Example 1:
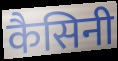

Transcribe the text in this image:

कैसिनी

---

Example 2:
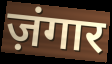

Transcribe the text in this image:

ज़ंगार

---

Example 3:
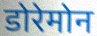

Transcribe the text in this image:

डोरेमोन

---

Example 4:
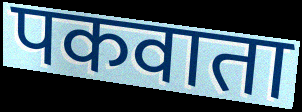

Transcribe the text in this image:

पकवाता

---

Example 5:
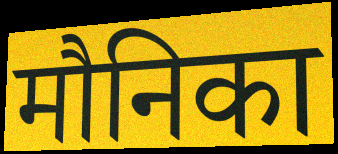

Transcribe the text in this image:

मौनिका